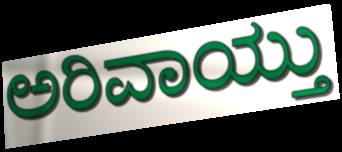
ಅರಿವಾಯ್ತು